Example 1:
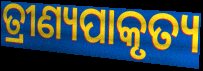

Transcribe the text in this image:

ତ୍ରୀଣ୍ୟପାକୃତ୍ୟ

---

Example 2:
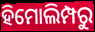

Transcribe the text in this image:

ହିମୋଲିମ୍ପରୁ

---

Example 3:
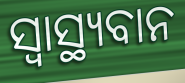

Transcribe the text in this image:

ସ୍ୱାସ୍ଥ୍ୟବାନ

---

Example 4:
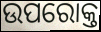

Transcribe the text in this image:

ଉପରୋକ୍ତ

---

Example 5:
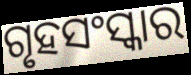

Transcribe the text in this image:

ଗୃହସଂସ୍କାର